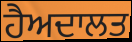
ਹੈਅਦਾਲਤ